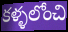
కళ్ళలోంచి